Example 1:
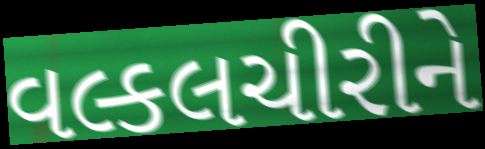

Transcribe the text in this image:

વલ્કલચીરીને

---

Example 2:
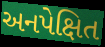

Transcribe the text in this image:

અનપેક્ષિત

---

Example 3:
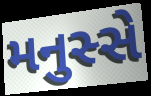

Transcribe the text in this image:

મનુસ્સે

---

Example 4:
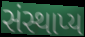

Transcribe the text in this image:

સંસ્થાપ્ય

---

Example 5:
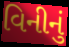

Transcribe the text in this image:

વિનીનું